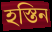
হস্তিন